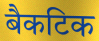
बैकटिक